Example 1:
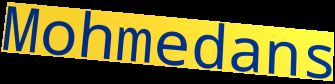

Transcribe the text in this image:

Mohmedans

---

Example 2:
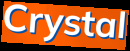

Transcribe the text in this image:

Crystal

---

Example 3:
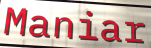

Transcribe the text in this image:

Maniar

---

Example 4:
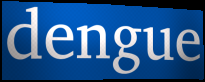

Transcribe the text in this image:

dengue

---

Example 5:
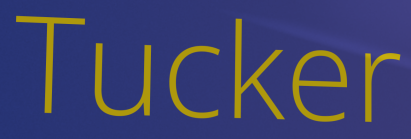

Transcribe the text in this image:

Tucker